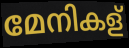
മേനികള്